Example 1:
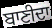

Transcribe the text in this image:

ਬਾਣੀਦਾ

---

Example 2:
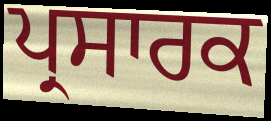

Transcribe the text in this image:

ਪ੍ਰਸਾਰਕ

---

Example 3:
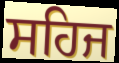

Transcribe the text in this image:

ਸਹਿਜ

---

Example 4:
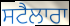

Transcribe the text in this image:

ਸਟੈਲਾਰਾ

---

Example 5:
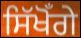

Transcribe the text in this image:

ਸਿੱਖੋਁਗੇ